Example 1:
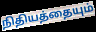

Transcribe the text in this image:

நிதியத்தையும்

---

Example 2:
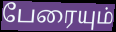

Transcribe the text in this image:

பேரையும்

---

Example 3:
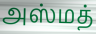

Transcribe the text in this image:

அஸ்மத்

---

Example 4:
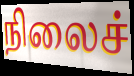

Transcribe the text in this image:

நிலைச்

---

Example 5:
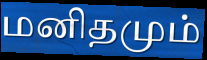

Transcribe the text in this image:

மனிதமும்